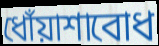
ধোঁয়াশাবোধ